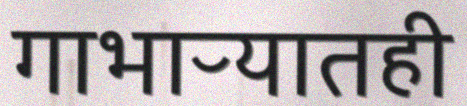
गाभाऱ्यातही